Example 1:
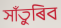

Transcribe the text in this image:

সাঁতুৰিব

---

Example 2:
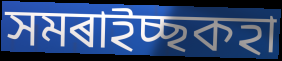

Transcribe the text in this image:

সমৰাইচ্ছকহা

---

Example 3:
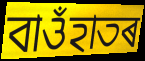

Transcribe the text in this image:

বাওঁহাতৰ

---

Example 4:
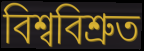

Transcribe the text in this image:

বিশ্ববিশ্ৰুত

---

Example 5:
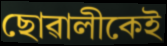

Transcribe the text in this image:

ছোৱালীকেই